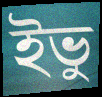
ইভু